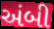
અંબી